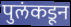
पुलंकडून